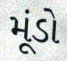
મૂંડો